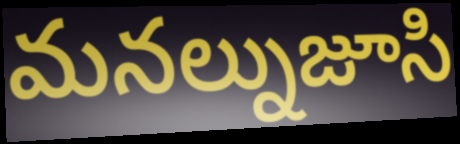
మనల్నుజూసి